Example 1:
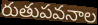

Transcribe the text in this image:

రుతుపవనాల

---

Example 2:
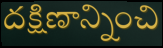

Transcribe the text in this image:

దక్షిణాన్నించి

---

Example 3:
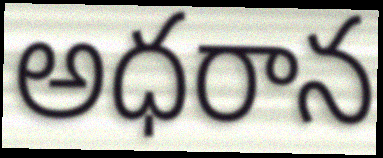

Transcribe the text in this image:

అధరాన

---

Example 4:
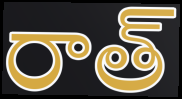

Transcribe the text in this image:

రాత్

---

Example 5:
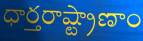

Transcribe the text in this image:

ధార్తరాష్ట్రాణాం